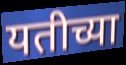
यतीच्या